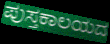
ಪುಸ್ತಕಾಲಯದ